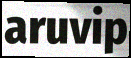
aruvip